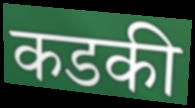
कडकी